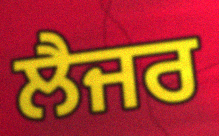
ਲੈਜਰ